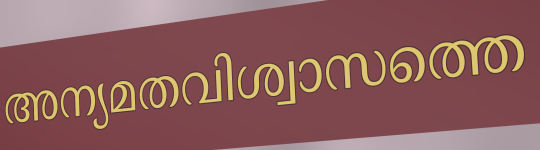
അന്യമതവിശ്വാസത്തെ